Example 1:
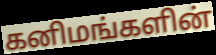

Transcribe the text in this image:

கனிமங்களின்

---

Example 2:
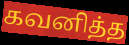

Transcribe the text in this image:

கவனித்த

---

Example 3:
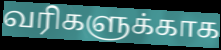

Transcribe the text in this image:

வரிகளுக்காக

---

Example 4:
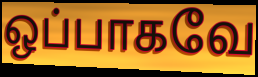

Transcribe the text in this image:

ஒப்பாகவே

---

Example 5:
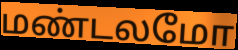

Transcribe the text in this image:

மண்டலமோ